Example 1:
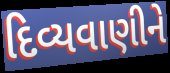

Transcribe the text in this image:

દિવ્યવાણીને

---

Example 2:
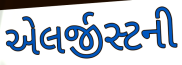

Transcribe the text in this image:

એલર્જીસ્ટની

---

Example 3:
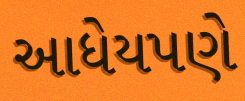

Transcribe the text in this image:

આધેયપણે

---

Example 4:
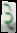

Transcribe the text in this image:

રે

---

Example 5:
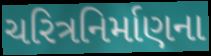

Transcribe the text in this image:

ચરિત્રનિર્માણના